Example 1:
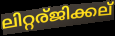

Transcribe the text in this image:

ലിറ്റര്ജിക്കല്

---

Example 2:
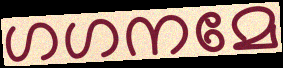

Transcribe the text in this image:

ഗഗനമേ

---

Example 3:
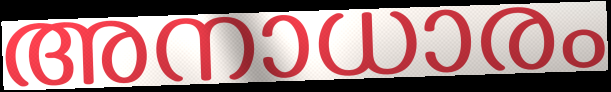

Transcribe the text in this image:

അനാധാരം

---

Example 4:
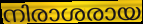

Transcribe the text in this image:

നിരാശരായ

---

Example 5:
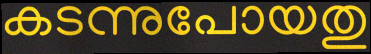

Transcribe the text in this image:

കടന്നുപോയതു